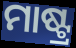
ମାଷ୍ଟ୍ର